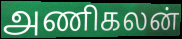
அணிகலன்